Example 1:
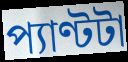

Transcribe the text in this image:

প্যাণ্টটা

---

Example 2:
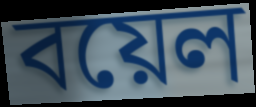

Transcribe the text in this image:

বয়েল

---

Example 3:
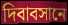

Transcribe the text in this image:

দিবাবসানে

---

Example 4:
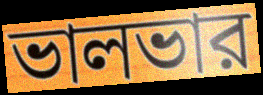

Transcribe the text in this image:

ভালভার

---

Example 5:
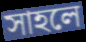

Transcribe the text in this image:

সাহলে